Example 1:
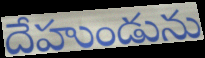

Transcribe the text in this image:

దేహుండును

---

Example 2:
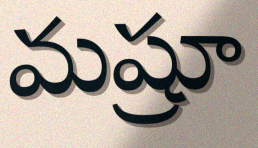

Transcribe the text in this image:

మష్రూ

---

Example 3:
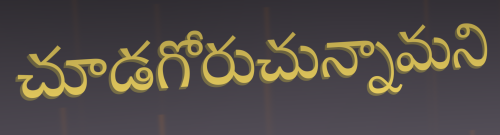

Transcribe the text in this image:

చూడగోరుచున్నామని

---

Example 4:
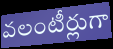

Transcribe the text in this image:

వలంటీర్లుగా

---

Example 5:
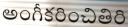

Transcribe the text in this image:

అంగీకరించితిరి